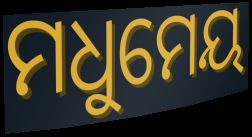
ମଧୁମେୟ